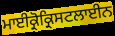
ਮਾਈਕ੍ਰੋਕ੍ਰਿਸਟਲਾਈਨ